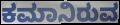
ಕಮಾನಿರುವ